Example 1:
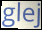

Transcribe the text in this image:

glej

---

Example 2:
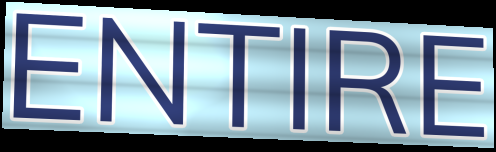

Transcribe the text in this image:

ENTIRE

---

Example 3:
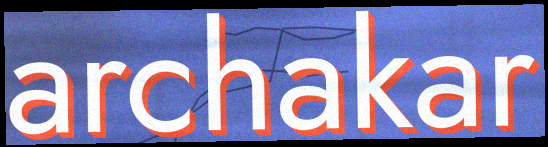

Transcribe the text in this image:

archakar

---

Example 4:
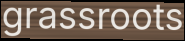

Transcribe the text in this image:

grassroots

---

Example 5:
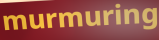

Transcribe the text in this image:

murmuring